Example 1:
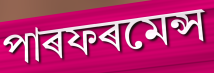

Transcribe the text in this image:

পাৰফৰমেন্স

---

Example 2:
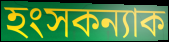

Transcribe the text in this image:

হংসকন্যাক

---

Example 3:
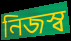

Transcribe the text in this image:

নিজস্ব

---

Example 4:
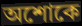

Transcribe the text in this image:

অশোকে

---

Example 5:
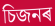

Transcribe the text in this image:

চিজনৰ